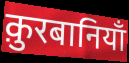
क़ुरबानियाँ